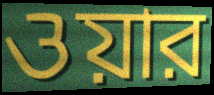
ওয়ার